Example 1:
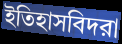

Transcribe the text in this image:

ইতিহাসবিদরা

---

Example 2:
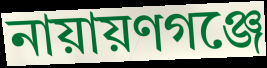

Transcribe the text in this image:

নায়ায়ণগঞ্জে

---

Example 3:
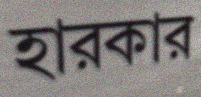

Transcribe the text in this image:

হারকার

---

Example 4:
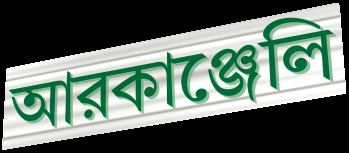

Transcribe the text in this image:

আরকাঞ্জেলি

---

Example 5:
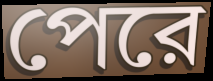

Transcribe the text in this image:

পেরে